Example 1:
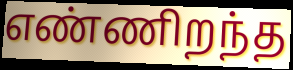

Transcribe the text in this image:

எண்ணிறந்த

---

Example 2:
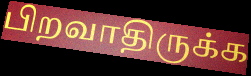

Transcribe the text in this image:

பிறவாதிருக்க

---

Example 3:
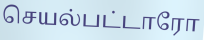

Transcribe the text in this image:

செயல்பட்டாரோ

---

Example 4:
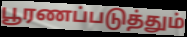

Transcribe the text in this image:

பூரணப்படுத்தும்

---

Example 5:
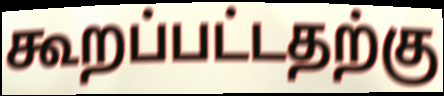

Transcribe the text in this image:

கூறப்பட்டதற்கு